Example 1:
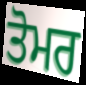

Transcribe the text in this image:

ਤੋਮਰ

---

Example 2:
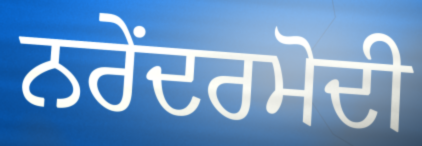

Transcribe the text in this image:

ਨਰੇਂਦਰਮੋਦੀ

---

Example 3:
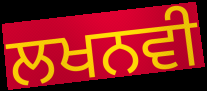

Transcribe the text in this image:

ਲਖਨਵੀ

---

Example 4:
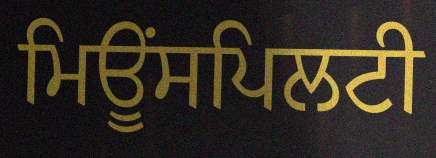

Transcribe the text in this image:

ਮਿਊਂਸਪਿਲਟੀ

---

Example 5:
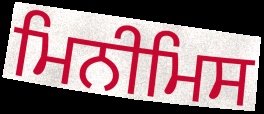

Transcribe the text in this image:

ਮਿਨੀਮਿਸ